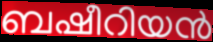
ബഷീറിയൻ